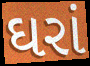
ઘરાં